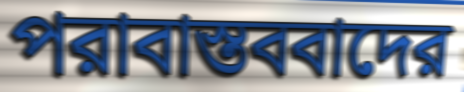
পরাবাস্তববাদের